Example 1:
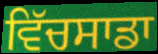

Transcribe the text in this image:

ਵਿੱਚਸਾਡਾ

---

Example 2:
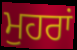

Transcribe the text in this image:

ਮੁਹਰਾਂ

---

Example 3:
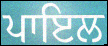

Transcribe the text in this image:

ਪਾਇਲ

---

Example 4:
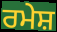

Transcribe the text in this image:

ਰਮੇਸ਼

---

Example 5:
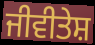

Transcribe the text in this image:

ਜੀਵੀਤੇਸ਼